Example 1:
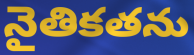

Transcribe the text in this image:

నైతికతను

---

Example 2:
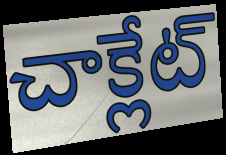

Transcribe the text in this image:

చాక్లేట్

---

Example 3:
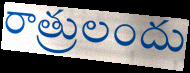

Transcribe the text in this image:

రాత్రులందు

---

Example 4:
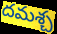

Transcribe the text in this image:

దమశ్చ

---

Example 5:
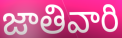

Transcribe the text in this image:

జాతివారి